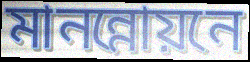
মানন্নোয়নে